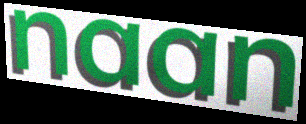
naan